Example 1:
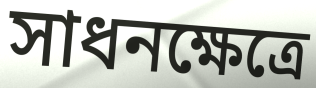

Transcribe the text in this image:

সাধনক্ষেত্রে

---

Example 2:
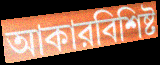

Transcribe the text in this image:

আকারবিশিষ্ট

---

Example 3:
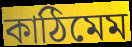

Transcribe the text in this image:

কাঠিমেম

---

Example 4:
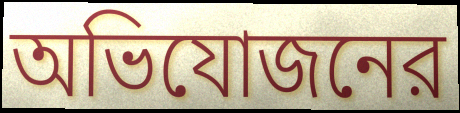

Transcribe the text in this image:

অভিযোজনের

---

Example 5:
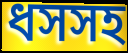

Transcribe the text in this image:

ধসসহ